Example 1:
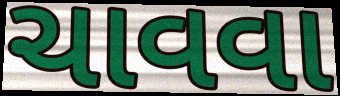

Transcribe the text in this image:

ચાવવા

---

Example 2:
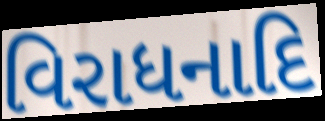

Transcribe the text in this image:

વિરાધનાદિ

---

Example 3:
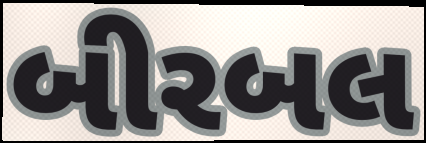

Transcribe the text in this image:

બીરબલ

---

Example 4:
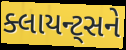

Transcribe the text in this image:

ક્લાયન્ટ્સને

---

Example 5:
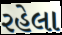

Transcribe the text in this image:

રહેલા